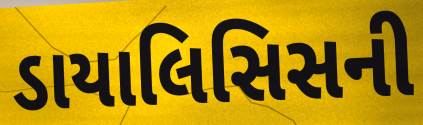
ડાયાલિસિસની